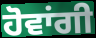
ਹੋਵਾਂਗੀ